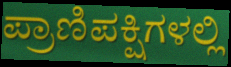
ಪ್ರಾಣಿಪಕ್ಷಿಗಳಲ್ಲಿ